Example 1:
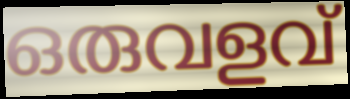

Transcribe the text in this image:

ഒരുവളവ്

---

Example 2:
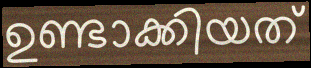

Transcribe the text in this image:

ഉണ്ടാക്കിയത്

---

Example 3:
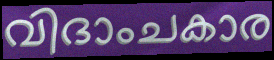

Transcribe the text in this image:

വിദാംചകാര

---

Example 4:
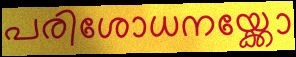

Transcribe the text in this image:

പരിശോധനയ്ക്കോ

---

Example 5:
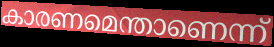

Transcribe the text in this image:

കാരണമെന്താണെന്ന്